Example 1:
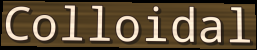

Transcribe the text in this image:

Colloidal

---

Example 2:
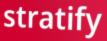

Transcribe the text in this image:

stratify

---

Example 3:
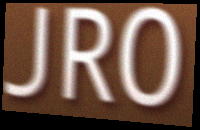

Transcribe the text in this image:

JRO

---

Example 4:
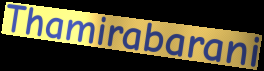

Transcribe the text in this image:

Thamirabarani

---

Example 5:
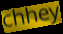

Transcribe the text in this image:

chhey